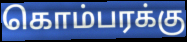
கொம்பரக்கு